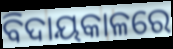
ବିଦାୟକାଳରେ